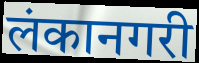
लंकानगरी